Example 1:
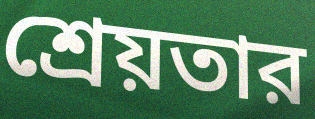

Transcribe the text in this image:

শ্রেয়তার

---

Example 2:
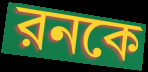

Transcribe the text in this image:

রনকে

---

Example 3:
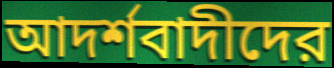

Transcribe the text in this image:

আদর্শবাদীদের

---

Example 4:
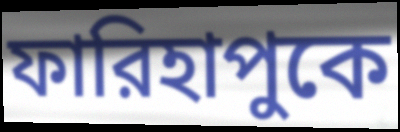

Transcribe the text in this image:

ফারিহাপুকে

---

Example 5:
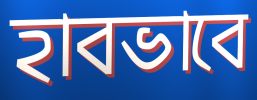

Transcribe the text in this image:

হাবভাবে